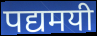
पद्यमयी